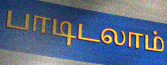
பாடிடலாம்